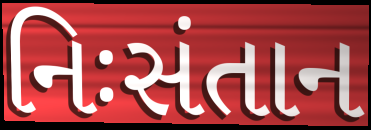
નિઃસંતાન